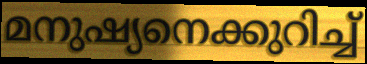
മനുഷ്യനെക്കുറിച്ച്